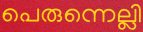
പെരുന്നെല്ലി